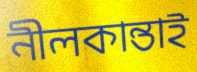
নীলকান্তাই